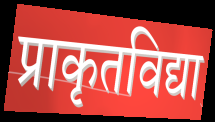
प्राकृतविद्या